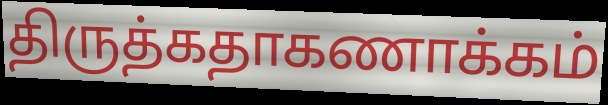
திருத்கதாகணாக்கம்